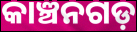
କାଞ୍ଚନଗଡ଼